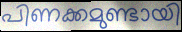
പിണക്കമുണ്ടായി